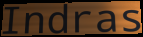
Indras